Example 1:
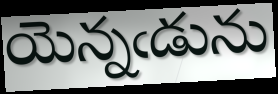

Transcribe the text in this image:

యెన్నఁడును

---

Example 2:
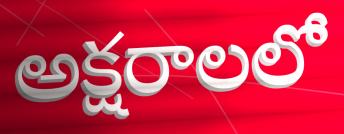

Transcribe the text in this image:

అక్షరాలలో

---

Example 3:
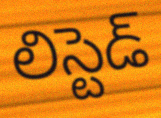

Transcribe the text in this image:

లిస్టెడ్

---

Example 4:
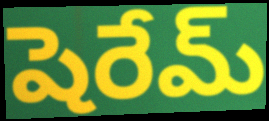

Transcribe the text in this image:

షెరేమ్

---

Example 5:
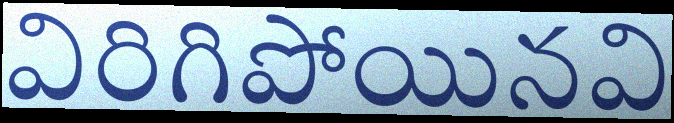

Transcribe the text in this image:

విరిగిపోయినవి